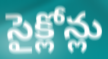
సైక్లోన్లు